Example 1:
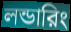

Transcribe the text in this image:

লন্ডারিং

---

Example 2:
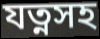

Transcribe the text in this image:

যত্নসহ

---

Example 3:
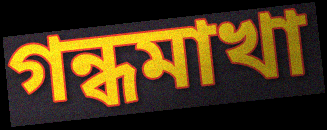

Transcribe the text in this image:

গন্ধমাখা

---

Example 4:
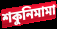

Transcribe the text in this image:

শকুনিমামা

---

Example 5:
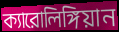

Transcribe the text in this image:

ক্যারোলিঙ্গিয়ান